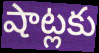
షాట్లకు